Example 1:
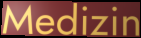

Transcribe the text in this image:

Medizin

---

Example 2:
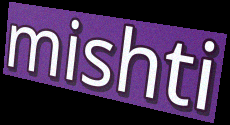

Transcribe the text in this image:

mishti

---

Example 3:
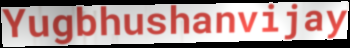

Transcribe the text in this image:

Yugbhushanvijay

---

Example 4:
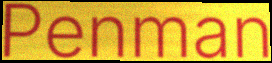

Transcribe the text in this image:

Penman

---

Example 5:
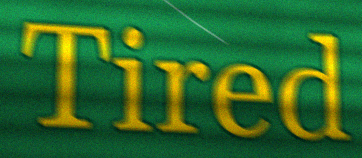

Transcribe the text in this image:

Tired